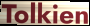
Tolkien